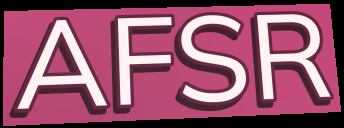
AFSR